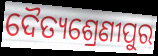
ଦୈତ୍ୟଶ୍ରେଣୀପୁର